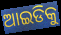
ଆଇଡିକୁ